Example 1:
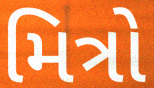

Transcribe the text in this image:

મિત્રો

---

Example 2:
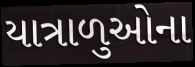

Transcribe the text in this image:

યાત્રાળુઓના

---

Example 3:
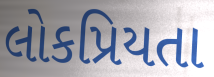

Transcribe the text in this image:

લોકપ્રિયતા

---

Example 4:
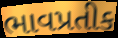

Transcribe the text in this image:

ભાવપ્રતીક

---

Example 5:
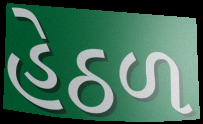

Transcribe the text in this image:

હેઠળ